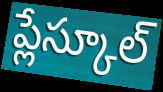
ప్లేస్కూల్